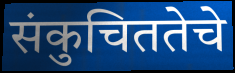
संकुचिततेचे